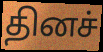
தினச்